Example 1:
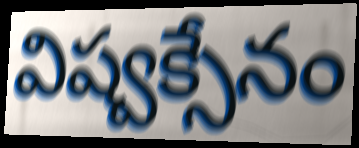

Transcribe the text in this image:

విష్వక్సేనం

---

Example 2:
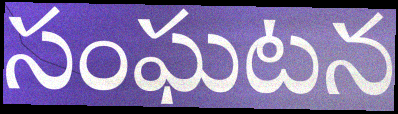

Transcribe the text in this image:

సంఘటన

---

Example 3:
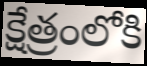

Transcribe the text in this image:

క్షేత్రంలోకి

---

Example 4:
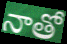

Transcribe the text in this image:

నాతో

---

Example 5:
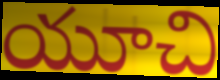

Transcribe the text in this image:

యూచి